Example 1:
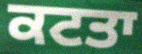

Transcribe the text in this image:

ਕਟਤਾ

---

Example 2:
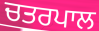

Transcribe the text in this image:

ਚਤਰਪਾਲ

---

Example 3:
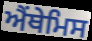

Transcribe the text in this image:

ਐਂਥੇਮਿਸ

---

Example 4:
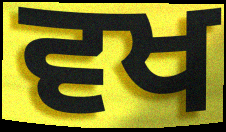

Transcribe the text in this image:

ਵਖ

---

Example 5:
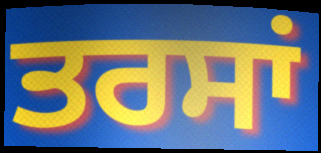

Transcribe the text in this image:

ਤਰਸਾਂ